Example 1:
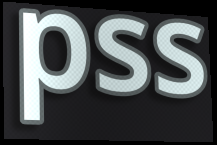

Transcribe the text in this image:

pss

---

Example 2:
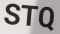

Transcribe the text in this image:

STQ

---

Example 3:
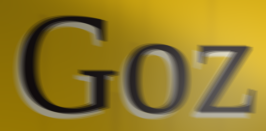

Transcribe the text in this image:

Goz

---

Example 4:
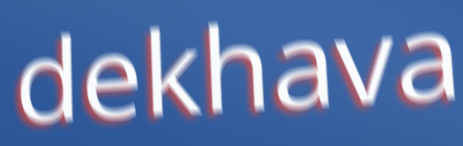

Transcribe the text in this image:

dekhava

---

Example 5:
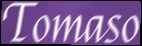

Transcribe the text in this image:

Tomaso